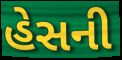
હેસની